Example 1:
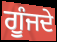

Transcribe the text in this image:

ਗੂੰਜਦੇ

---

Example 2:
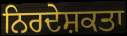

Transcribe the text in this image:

ਨਿਰਦੇਸ਼ਕਤਾ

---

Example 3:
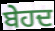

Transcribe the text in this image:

ਬੇਹਦ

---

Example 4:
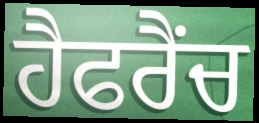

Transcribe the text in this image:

ਹੈਫਰੈਂਚ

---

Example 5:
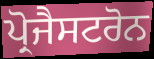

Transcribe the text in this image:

ਪ੍ਰੋਜੈਸਟਰੋਨ